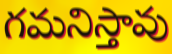
గమనిస్తావు